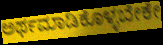
ಅರ್ಥಮಾಡಿಕೊಳ್ಳಬೇಕೇ